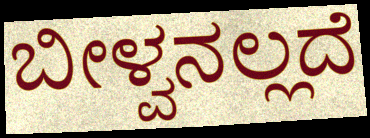
ಬೀಳ್ವನಲ್ಲದೆ